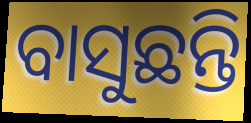
ବାସୁଛନ୍ତି